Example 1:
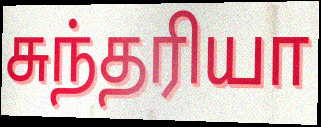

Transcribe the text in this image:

சுந்தரியா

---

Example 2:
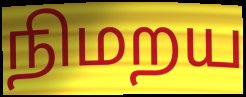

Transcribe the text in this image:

நிமறய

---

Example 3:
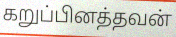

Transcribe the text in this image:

கறுப்பினத்தவன்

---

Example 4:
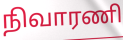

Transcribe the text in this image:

நிவாரணி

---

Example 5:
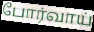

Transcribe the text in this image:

போர்வாய்